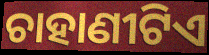
ଚାହାଣୀଟିଏ